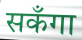
सकँगा